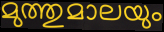
മുത്തുമാലയും